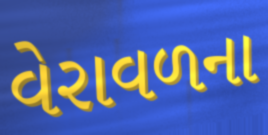
વેરાવળના